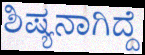
ಶಿಷ್ಯನಾಗಿದ್ದೆ